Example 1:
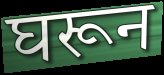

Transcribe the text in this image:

घरून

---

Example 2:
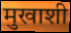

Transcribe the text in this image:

मुखाशी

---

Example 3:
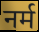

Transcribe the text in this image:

नर्म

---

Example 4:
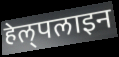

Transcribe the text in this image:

हेल्पलाइन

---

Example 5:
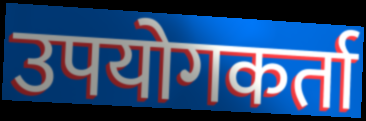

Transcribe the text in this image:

उपयोगकर्ता